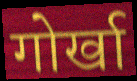
गोर्खा